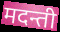
मदन्ती